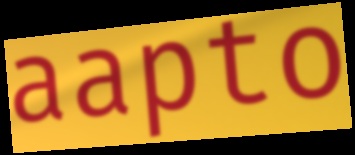
aapto